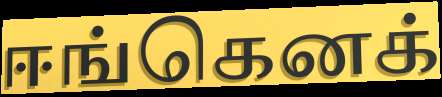
ஈங்கெனக்